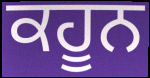
ਕਹੂਨ